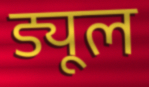
ड्यूल